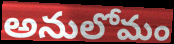
అనులోమం